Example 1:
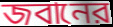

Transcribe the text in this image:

জবানের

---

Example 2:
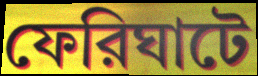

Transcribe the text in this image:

ফেরিঘাটে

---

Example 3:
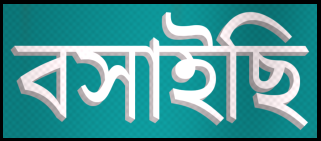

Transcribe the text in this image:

বসাইছি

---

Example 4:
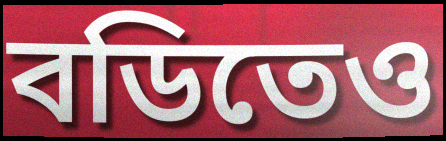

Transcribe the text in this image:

বডিতেও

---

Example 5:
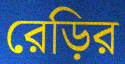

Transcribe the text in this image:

রেড়ির